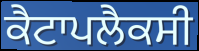
ਕੈਟਾਪਲੈਕਸੀ